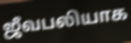
ஜீவபலியாக